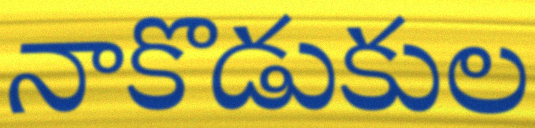
నాకొడుకుల